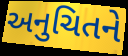
અનુચિતને